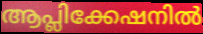
ആപ്ലിക്കേഷനിൽ